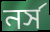
নর্স